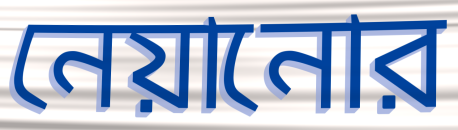
নেয়ানোর